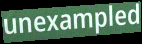
unexampled